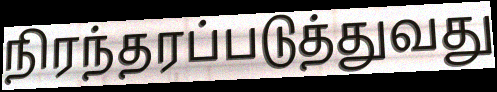
நிரந்தரப்படுத்துவது